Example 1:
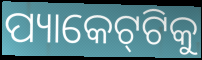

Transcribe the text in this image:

ପ୍ୟାକେଟ୍‌ଟିକୁ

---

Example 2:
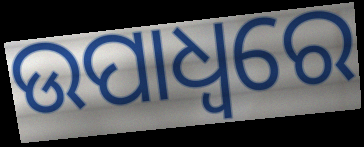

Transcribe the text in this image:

ଉପାଧ୍ଵରେ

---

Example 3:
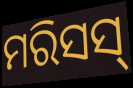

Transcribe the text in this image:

ମରିସସ୍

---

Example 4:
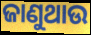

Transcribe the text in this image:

ଜାଣୁଥାଉ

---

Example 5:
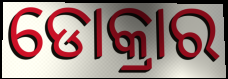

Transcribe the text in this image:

ଡୋକ୍ରାର